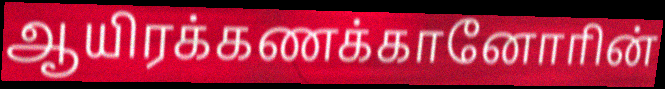
ஆயிரக்கணக்கானோரின்